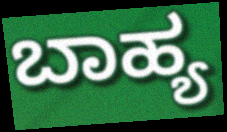
ಬಾಹ್ಯ